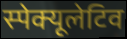
स्पेक्यूलेटिव